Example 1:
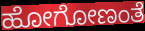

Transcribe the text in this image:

ಹೋಗೋಣಂತೆ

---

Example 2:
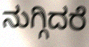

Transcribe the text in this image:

ನುಗ್ಗಿದರೆ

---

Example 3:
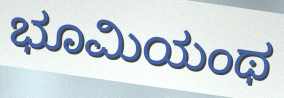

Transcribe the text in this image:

ಭೂಮಿಯಂಥ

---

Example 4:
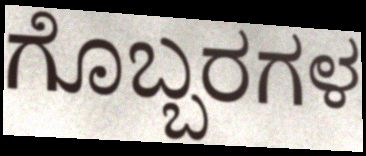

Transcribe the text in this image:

ಗೊಬ್ಬರಗಳ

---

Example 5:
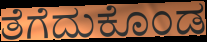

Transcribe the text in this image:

ತೆಗೆದುಕೊಂಡ